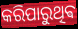
କରିପାରୁଥିଵ